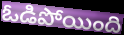
ఓడిపోయింది